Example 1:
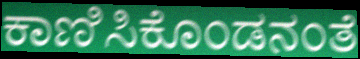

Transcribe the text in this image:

ಕಾಣಿಸಿಕೊಂಡನಂತೆ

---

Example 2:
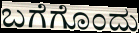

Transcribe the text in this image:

ಬಗೆಗೊಂದು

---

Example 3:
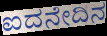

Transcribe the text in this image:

ಐದನೇದಿನ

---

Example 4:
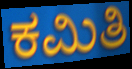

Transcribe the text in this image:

ಕಮಿತಿ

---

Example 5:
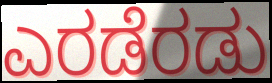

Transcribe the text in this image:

ಎರಡೆರಡು